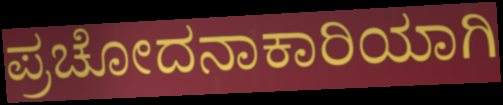
ಪ್ರಚೋದನಾಕಾರಿಯಾಗಿ